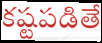
కష్టపడితే